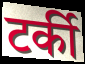
टर्की